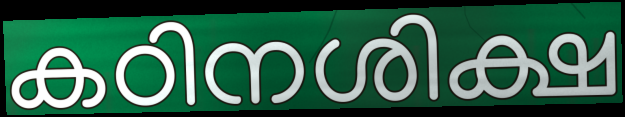
കഠിനശിക്ഷ